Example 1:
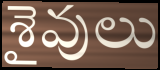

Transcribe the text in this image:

శైవులు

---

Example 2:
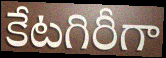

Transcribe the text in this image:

కేటగిరీగా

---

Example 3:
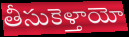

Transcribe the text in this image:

తీసుకెళ్తాయో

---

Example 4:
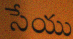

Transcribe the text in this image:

సేయు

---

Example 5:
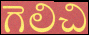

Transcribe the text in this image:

గెలిచి